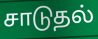
சாடுதல்